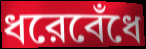
ধরেবেঁধে